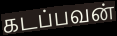
கடப்பவன்